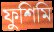
ফুশিমি